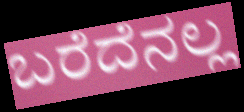
ಬರೆದೆನಲ್ಲ